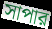
সাপার